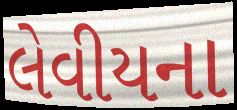
લેવીયના